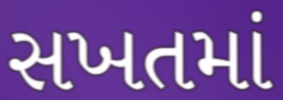
સખતમાં